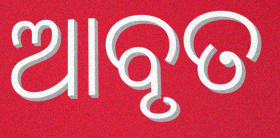
ଆବୃତ